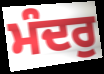
ਮੰਦਰੁ